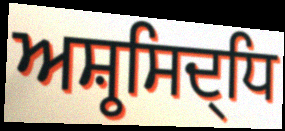
ਅਸ਼੍ਠਸਿਦ੍ਧਿ